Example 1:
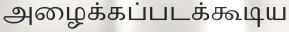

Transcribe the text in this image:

அழைக்கப்படக்கூடிய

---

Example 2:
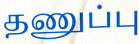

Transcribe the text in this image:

தணுப்பு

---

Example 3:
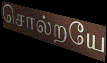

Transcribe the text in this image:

சொல்றயே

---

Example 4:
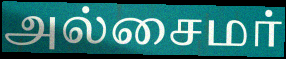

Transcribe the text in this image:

அல்சைமர்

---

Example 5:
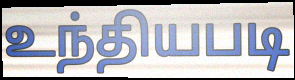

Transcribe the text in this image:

உந்தியபடி